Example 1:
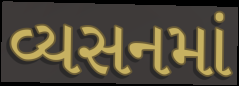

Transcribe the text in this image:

વ્યસનમાં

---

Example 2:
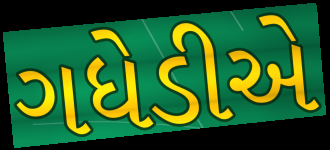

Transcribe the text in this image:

ગધેડીએ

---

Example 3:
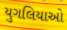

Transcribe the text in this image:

યુગલિયાઓ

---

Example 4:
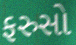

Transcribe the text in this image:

ફરુસો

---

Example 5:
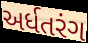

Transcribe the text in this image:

અર્ધતરંગ